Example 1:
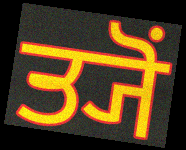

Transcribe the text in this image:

ਤ੍ਯੋਂ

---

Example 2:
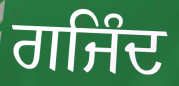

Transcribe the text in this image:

ਗਜਿੰਦ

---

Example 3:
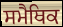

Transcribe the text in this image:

ਸਮੈਥਿਕ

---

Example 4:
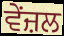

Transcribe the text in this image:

ਵੇਂਜ਼ਲ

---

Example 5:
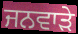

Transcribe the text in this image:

ਜਨਵਾੜੇ